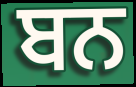
ਬਨ